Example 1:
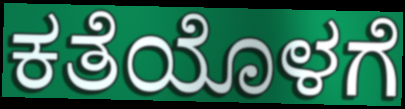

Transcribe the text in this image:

ಕತೆಯೊಳಗೆ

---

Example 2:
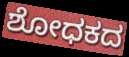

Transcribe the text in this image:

ಶೋಧಕದ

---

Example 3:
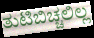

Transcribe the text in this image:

ತುಟಿಬಿಚ್ಚಲಿಲ್ಲ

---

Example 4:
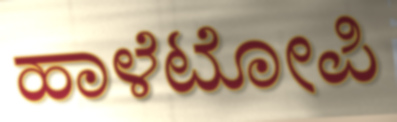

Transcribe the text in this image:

ಹಾಳೆಟೋಪಿ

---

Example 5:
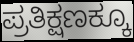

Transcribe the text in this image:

ಪ್ರತಿಕ್ಷಣಕ್ಕೂ